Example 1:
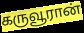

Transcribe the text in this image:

கருவூரான்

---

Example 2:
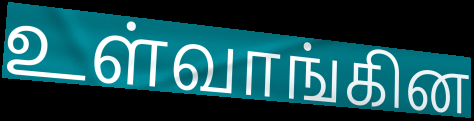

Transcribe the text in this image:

உள்வாங்கின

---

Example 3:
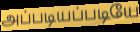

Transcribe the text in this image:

அப்படியப்படியே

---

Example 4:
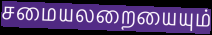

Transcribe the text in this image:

சமையலறையையும்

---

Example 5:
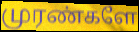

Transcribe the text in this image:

முரண்களே